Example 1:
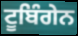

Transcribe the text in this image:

ਟੂਬਿੰਗੇਨ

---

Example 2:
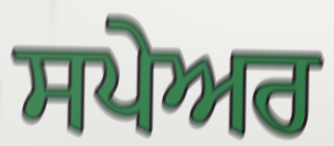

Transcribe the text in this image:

ਸਪੇਅਰ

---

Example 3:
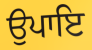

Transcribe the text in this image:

ਉਪਾਇ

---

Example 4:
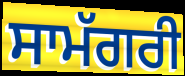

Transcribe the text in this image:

ਸਾਮੱਗਰੀ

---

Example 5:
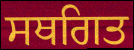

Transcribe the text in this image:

ਸਥਗਿਤ